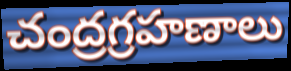
చంద్రగ్రహణాలు